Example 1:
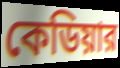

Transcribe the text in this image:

কেডিয়ার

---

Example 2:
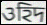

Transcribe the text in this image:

ওহিদ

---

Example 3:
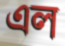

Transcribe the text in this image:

এল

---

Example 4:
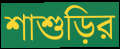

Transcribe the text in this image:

শাশুড়ির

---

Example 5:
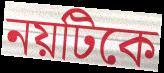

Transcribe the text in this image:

নয়টিকে